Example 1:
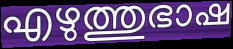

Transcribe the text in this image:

എഴുത്തുഭാഷ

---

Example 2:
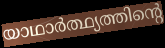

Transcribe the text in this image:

യാഥാർത്ഥ്യത്തിന്റെ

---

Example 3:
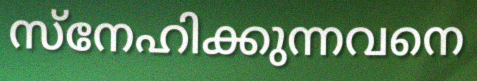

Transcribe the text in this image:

സ്നേഹിക്കുന്നവനെ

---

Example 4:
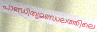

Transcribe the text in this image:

പാണ്ഡിത്യമണ്ഡലത്തിലെ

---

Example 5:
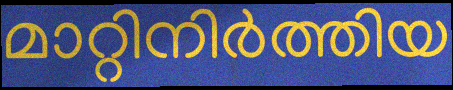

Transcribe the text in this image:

മാറ്റിനിർത്തിയ